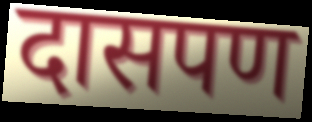
दासपण